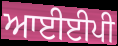
ਆਈਈਪੀ